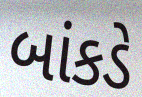
બાંકડે